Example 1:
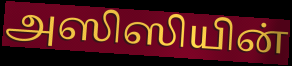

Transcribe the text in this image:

அஸிஸியின்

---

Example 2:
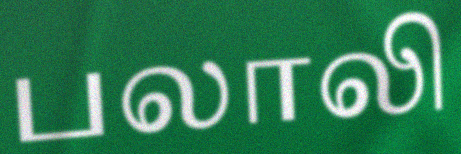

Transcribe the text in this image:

பலாலி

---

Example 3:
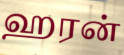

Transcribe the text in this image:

ஹரன்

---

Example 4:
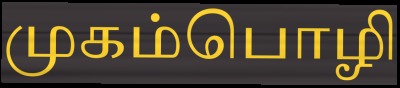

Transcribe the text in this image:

முகம்பொழி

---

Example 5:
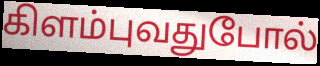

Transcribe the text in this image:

கிளம்புவதுபோல்